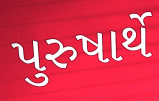
પુરુષાર્થે